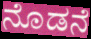
ನೊಡನೆ